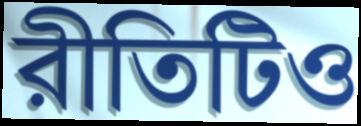
রীতিটিও